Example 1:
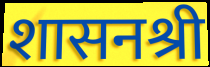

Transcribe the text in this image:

शासनश्री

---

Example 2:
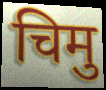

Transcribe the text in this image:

चिमु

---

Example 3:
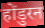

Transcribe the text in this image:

होंडुरन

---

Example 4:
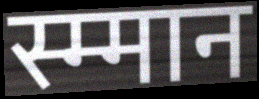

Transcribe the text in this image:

स्म्मान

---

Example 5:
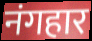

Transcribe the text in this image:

नंगहार